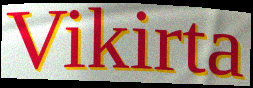
Vikirta